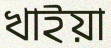
খাইয়া